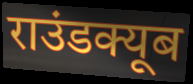
राउंडक्यूब